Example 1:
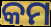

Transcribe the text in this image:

କମ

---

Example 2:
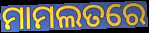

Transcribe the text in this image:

ମାମଲତରେ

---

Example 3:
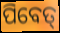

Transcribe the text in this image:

ପିବେତ୍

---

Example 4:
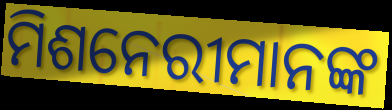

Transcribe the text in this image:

ମିଶନେରୀମାନଙ୍କ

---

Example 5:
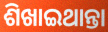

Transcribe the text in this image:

ଶିଖାଇଥାନ୍ତା